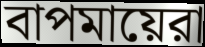
বাপমায়েরা